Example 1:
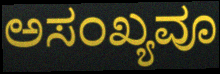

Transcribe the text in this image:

ಅಸಂಖ್ಯವೂ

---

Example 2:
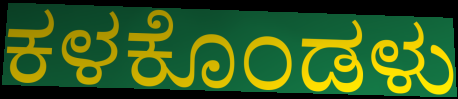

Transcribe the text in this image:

ಕಳಕೊಂಡಳು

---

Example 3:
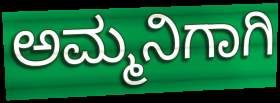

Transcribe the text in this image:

ಅಮ್ಮನಿಗಾಗಿ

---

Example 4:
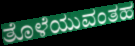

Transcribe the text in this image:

ತೊಳೆಯುವಂತಹ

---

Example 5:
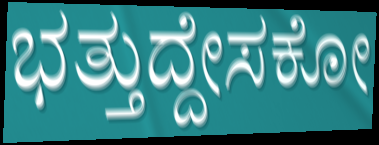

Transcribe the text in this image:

ಭತ್ತುದ್ದೇಸಕೋ